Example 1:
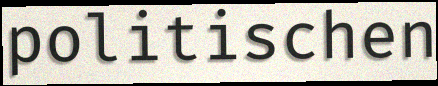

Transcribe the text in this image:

politischen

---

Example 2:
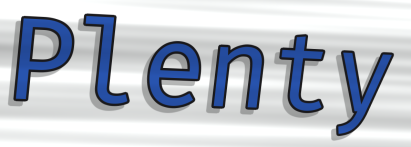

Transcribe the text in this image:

Plenty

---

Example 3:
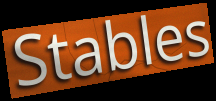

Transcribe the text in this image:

Stables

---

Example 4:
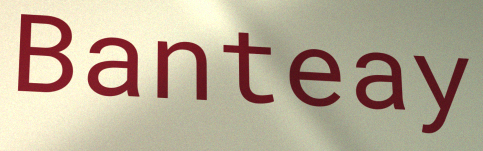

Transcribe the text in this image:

Banteay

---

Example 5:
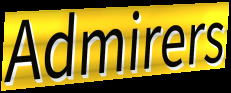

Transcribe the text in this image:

Admirers